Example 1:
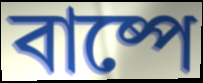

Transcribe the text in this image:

বাষ্পে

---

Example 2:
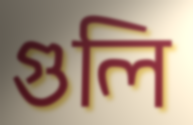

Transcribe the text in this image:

গুলি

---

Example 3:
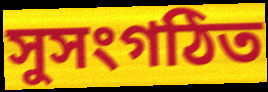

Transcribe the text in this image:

সুসংগঠিত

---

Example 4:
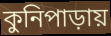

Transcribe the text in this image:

কুনিপাড়ায়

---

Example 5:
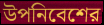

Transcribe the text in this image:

উপনিবেশের